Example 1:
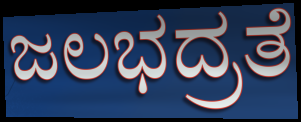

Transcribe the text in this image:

ಜಲಭದ್ರತೆ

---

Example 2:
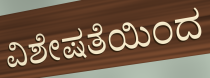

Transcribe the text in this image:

ವಿಶೇಷತೆಯಿಂದ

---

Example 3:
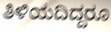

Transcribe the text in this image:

ತಿಳಿಯದಿದ್ದರೂ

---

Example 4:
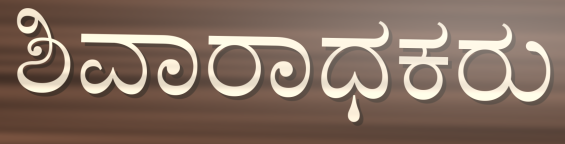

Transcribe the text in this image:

ಶಿವಾರಾಧಕರು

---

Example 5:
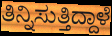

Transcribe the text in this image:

ತಿನ್ನಿಸುತ್ತಿದ್ದಾಳೆ